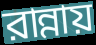
রান্নায়